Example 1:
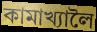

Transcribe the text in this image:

কামাখ্যালৈ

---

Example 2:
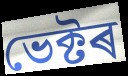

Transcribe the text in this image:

ভেক্টৰ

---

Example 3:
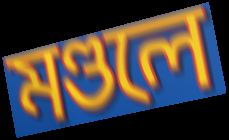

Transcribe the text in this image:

মণ্ডলে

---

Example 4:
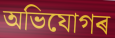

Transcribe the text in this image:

অভিযোগৰ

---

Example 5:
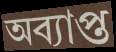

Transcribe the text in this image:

অব্যাপ্ত